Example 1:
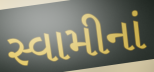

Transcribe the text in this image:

સ્વામીનાં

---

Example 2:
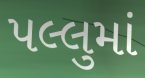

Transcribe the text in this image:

પલ્લુમાં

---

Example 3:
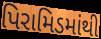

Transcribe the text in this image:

પિરામિડમાંથી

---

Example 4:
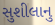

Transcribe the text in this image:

સુશીલાનુ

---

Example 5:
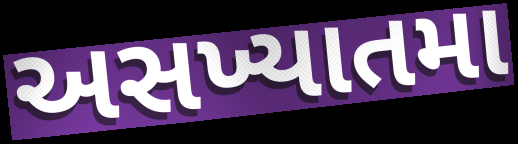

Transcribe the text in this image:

અસખ્યાતમા